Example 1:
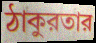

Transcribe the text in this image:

ঠাকুরতার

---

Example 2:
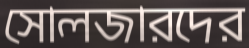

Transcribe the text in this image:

সোলজারদের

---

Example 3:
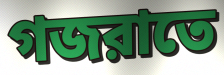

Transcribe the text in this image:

গজরাতে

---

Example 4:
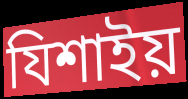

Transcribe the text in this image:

যিশাইয়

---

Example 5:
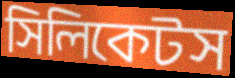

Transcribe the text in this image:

সিলিকেটস